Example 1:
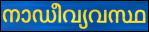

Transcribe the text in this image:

നാഡീവ്യവസ്ഥ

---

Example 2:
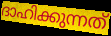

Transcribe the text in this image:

ദാഹിക്കുന്നത്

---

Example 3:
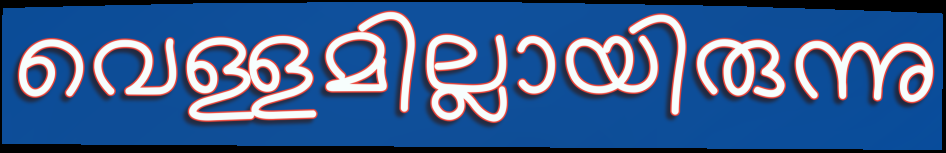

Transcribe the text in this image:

വെള്ളമില്ലായിരുന്നു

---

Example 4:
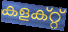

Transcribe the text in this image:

കളക്റ്റ്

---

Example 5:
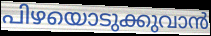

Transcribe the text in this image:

പിഴയൊടുക്കുവാൻ